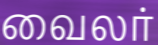
வைலர்